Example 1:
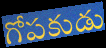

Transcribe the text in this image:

గోపకుడు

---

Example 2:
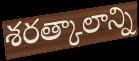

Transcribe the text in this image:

శరత్కాలాన్ని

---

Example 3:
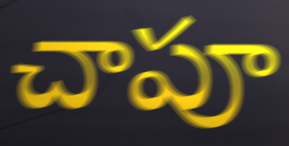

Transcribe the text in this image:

చాపూ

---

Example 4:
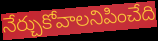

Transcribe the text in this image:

నేర్చుకోవాలనిపించేది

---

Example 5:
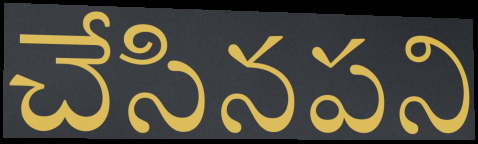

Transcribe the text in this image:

చేసినపని